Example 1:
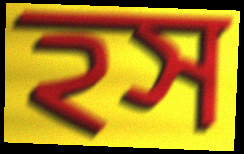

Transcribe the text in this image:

হস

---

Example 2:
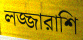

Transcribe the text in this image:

লজ্জারাশি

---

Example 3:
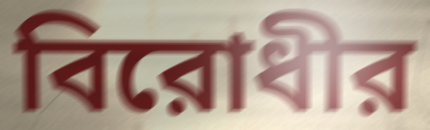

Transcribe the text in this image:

বিরোধীর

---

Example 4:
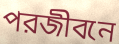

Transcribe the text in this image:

পরজীবনে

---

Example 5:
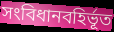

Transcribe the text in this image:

সংবিধানবহির্ভূত